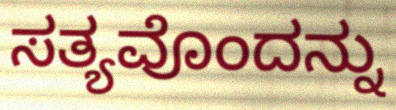
ಸತ್ಯವೊಂದನ್ನು